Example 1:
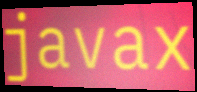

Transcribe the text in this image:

javax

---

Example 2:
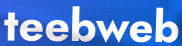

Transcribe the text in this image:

teebweb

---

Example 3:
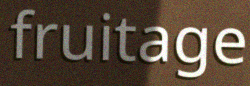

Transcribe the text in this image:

fruitage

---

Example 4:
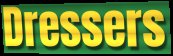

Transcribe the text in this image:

Dressers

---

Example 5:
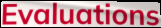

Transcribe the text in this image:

Evaluations